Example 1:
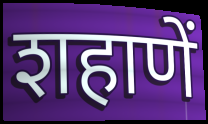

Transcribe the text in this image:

शहाणें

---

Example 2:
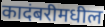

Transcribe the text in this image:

कादंबरीमधील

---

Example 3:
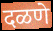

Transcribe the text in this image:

दळणे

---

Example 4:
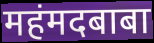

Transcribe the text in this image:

महंमदबाबा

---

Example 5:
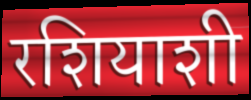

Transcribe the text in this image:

रशियाशी